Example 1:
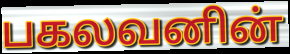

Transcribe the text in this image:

பகலவனின்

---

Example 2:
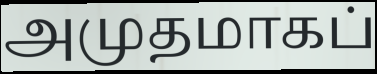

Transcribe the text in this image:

அமுதமாகப்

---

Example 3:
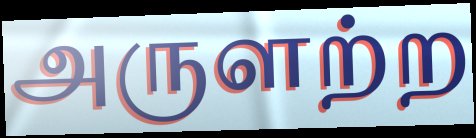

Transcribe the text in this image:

அருளற்ற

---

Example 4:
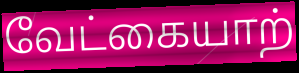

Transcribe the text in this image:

வேட்கையாற்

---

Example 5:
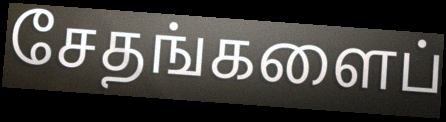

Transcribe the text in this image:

சேதங்களைப்